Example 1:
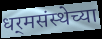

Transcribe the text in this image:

धर्मसंस्थेच्या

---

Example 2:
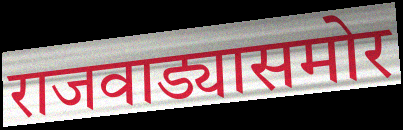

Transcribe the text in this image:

राजवाड्यासमोर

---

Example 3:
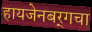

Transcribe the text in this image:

हायजेनबर्गचा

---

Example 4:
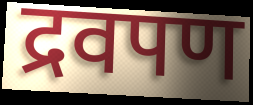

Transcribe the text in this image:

द्रवपण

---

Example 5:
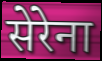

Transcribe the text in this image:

सेरेना